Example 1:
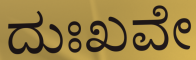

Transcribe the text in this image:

ದುಃಖವೇ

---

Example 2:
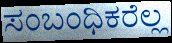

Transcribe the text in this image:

ಸಂಬಂಧಿಕರೆಲ್ಲ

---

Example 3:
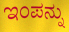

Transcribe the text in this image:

ಇಂಪನ್ನು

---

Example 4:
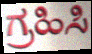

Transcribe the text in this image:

ಗ್ರಹಿಸಿ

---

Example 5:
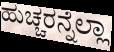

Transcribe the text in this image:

ಹುಚ್ಚರನ್ನೆಲ್ಲಾ